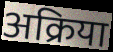
अक्रिया